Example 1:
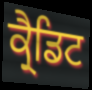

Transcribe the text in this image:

ਕ੍ਰੈਡਿਟ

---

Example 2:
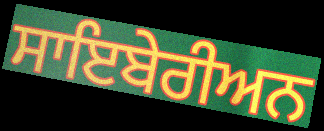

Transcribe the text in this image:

ਸਾਇਬੇਰੀਅਨ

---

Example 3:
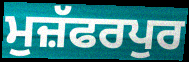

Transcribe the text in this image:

ਮੁਜ਼ੱਫਰਪੁਰ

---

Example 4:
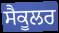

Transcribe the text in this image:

ਸੈਕੂਲਰ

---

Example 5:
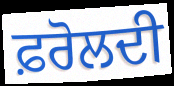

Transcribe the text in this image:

ਫ਼ਰੋਲਦੀ